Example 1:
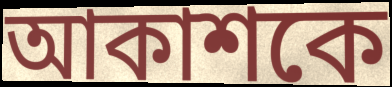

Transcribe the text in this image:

আকাশকে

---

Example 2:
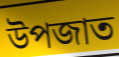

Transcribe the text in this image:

উপজাত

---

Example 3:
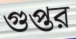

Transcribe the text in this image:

গুপ্তর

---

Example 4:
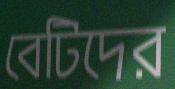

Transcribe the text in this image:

বেটিদের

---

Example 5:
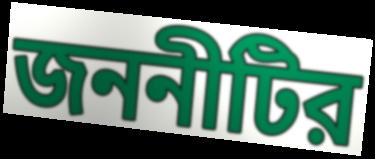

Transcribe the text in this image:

জননীটির